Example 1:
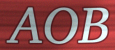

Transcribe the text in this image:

AOB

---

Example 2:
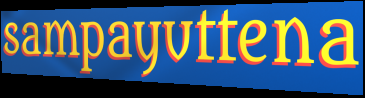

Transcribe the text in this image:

sampayuttena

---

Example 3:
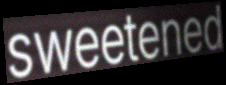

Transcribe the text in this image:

sweetened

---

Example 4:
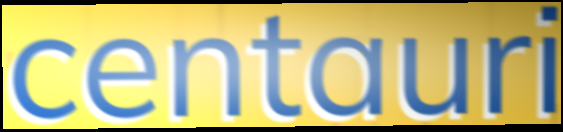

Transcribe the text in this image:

centauri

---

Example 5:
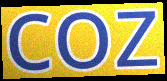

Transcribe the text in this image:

coz